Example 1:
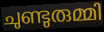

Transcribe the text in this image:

ചുണ്ടുരുമ്മി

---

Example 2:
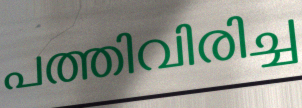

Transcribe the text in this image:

പത്തിവിരിച്ച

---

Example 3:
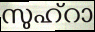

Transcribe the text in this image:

സുഹ്റാ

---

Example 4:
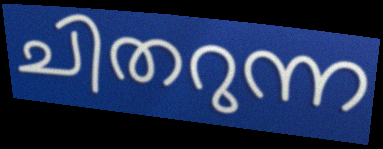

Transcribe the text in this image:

ചിതറുന്ന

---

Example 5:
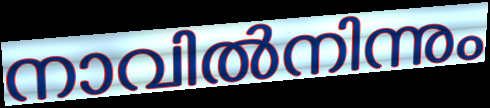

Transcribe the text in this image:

നാവിൽനിന്നും